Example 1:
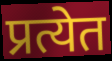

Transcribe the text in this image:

प्रत्येत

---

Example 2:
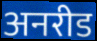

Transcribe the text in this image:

अनरीड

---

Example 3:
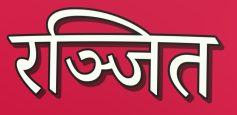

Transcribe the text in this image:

रञ्जित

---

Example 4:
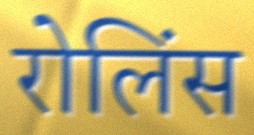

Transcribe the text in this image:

रोलिंस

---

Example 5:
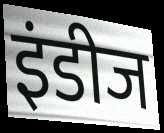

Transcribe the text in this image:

इंडीज